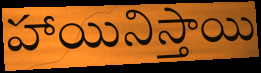
హాయినిస్తాయి